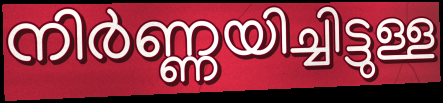
നിർണ്ണയിച്ചിട്ടുള്ള